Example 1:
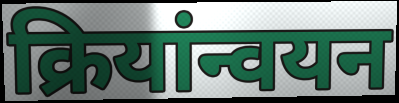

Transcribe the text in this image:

क्रियांन्वयन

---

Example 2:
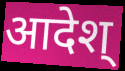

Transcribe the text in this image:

आदेश्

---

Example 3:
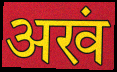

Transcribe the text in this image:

अखं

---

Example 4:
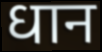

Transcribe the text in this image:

धान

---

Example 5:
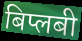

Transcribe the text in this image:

बिप्लबी